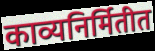
काव्यनिर्मितीत